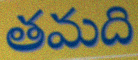
తమది